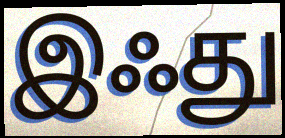
இஃது